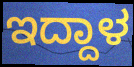
ಇದ್ದಾಳ